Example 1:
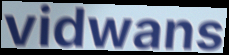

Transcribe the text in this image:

vidwans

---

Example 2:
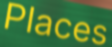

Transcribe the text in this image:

Places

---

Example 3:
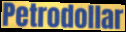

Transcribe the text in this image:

Petrodollar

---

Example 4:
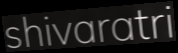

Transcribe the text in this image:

shivaratri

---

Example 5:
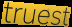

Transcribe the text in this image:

truest